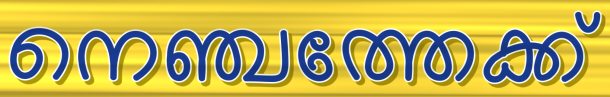
നെഞ്ചത്തേക്ക്